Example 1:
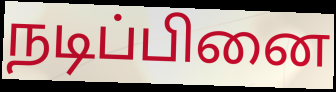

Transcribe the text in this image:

நடிப்பினை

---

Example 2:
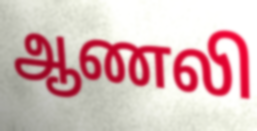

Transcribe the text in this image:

ஆணலி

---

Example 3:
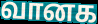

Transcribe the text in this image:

வானக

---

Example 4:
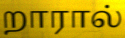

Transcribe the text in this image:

றாரால்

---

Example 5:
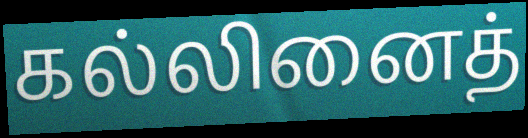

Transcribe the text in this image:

கல்லினைத்